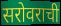
सरोवराची